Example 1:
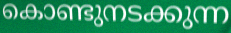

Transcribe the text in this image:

കൊണ്ടുനടക്കുന്ന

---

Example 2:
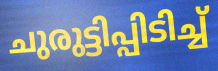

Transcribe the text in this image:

ചുരുട്ടിപ്പിടിച്ച്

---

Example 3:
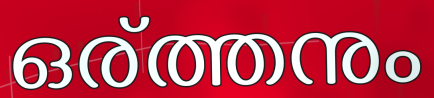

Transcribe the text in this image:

ഒര്ത്തനും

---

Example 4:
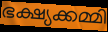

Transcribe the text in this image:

ഭക്ഷ്യക്കമ്മി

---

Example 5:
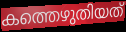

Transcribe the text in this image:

കത്തെഴുതിയത്